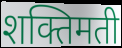
शक्तिमती